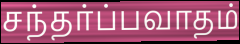
சந்தர்ப்பவாதம்